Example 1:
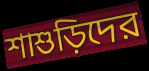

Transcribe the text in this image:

শাশুড়িদের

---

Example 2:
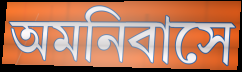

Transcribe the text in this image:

অমনিবাসে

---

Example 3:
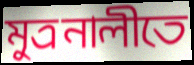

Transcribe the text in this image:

মুত্রনালীতে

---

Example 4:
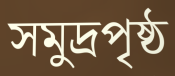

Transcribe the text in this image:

সমুদ্রপৃষ্ঠ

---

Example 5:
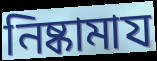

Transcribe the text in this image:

নিষ্কামায